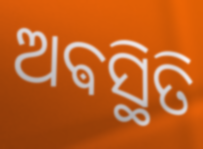
ଅଵସ୍ଥିତି